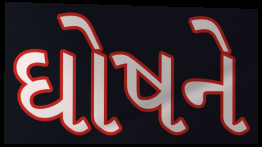
ઘોષને